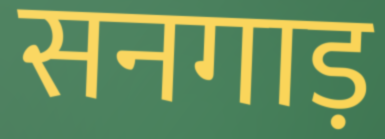
सनगाड़